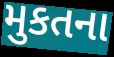
મુકતના